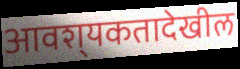
आवश्यकतादेखील